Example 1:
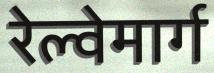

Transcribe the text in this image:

रेल्वेमार्ग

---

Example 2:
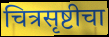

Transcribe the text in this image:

चित्रसृष्टीचा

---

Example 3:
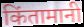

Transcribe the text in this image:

किंतामानी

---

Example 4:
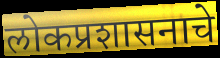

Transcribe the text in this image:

लोकप्रशासनाचे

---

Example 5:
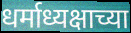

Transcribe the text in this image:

धर्माध्यक्षाच्या